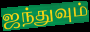
ஜந்துவும்